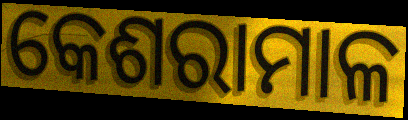
କେଶରାମାଳ